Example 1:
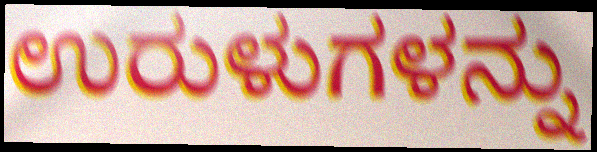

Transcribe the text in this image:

ಉರುಳುಗಳನ್ನು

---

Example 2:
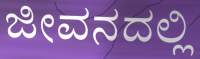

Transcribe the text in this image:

ಜೀವನದಲ್ಲಿ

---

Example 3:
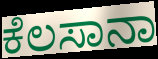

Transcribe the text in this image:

ಕೆಲಸಾನಾ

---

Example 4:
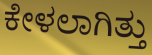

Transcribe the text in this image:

ಕೇಳಲಾಗಿತ್ತು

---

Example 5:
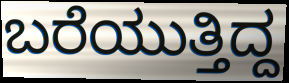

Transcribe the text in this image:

ಬರೆಯುತ್ತಿದ್ದ